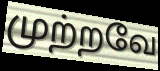
முற்றவே